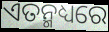
ଏତନ୍ମଧ୍ୟରେ